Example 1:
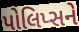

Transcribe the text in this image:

પોલિપ્સને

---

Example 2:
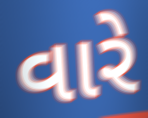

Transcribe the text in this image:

વારે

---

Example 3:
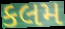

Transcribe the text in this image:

કલમ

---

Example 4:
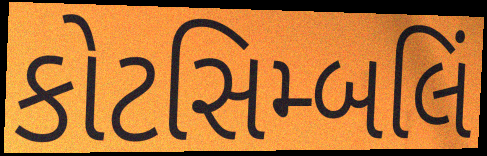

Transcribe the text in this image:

કોટસિમ્બલિં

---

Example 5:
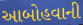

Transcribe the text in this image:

આબોહવાની